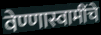
वेण्णास्वामींचे